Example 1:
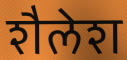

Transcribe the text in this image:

शैलेश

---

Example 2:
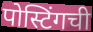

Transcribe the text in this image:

पोस्टिंगची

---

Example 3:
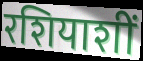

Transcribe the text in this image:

रशियाशीं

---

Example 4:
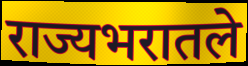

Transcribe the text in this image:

राज्यभरातले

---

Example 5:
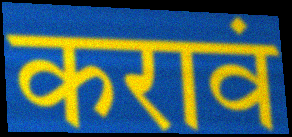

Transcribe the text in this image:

करावं